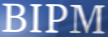
BIPM